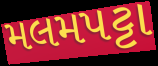
મલમપટ્ટા